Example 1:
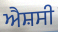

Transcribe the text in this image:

ਐਸ਼ਸੀ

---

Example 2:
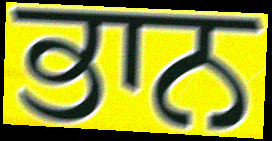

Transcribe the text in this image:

ਭਾਨ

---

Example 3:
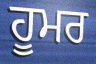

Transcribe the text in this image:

ਹੂਮਰ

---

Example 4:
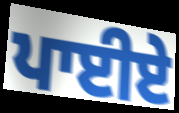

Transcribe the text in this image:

ਪਾਈਏ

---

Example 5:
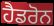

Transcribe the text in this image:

ਹੈਡਰੋਨ